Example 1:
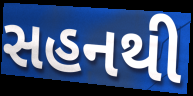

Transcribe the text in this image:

સહનથી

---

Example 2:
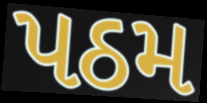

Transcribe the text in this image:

પઠમ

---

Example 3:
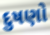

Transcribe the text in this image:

દુષણો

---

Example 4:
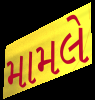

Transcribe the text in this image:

મામલે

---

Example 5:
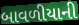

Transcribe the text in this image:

બાવળીયાની